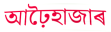
আঢ়ৈহাজাৰ